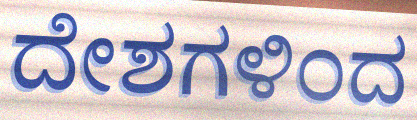
ದೇಶಗಳಿಂದ